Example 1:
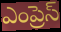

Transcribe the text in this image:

ఎంప్రెస్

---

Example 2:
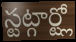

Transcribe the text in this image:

స్టట్గార్ట్లో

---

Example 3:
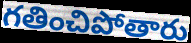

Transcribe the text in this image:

గతించిపోతారు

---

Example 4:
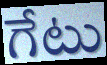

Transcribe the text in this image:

గేటు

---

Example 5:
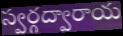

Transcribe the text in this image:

స్వర్గద్వారాయ